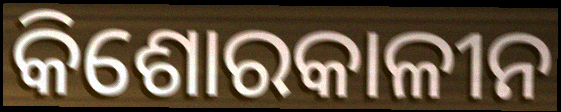
କିଶୋରକାଳୀନ